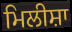
ਮਿਲੀਸ਼ਾ